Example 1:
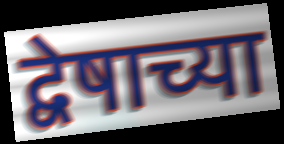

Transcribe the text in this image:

द्वेषाच्या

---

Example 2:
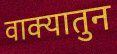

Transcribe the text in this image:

वाक्यातुन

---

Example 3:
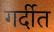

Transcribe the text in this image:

गर्दीत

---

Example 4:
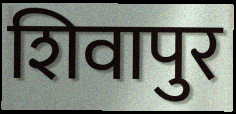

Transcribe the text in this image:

शिवापुर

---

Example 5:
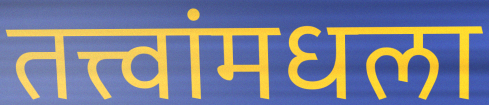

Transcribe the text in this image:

तत्त्वांमधला